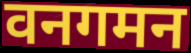
वनगमन